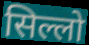
सिल्लो